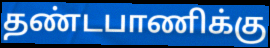
தண்டபாணிக்கு